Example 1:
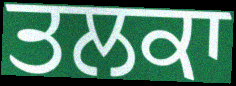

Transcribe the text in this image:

ਤਲਕਾ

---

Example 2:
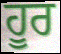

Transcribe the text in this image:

ਹੂਰ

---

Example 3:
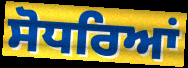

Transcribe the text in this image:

ਸੋਧਰਿਆਂ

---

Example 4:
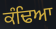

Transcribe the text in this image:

ਕੰਢਿਆ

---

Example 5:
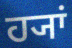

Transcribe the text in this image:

ਹ੍ਯਾਂ